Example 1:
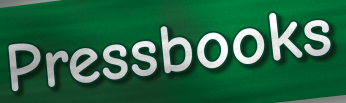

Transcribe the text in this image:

Pressbooks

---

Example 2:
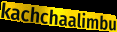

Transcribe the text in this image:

kachchaalimbu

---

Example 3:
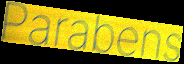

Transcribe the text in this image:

Parabens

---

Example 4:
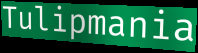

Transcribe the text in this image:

Tulipmania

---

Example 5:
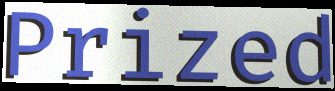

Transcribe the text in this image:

Prized